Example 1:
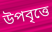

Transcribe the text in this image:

উপবৃত্তে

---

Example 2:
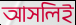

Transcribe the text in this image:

আসলিই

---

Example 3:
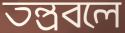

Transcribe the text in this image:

তন্ত্রবলে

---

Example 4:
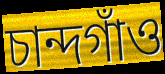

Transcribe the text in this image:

চান্দগাঁও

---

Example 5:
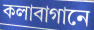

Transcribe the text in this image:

কলাবাগানে